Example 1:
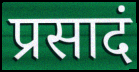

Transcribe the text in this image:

प्रसादं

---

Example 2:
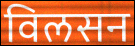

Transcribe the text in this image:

विलसन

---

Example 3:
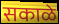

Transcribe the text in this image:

सकाळे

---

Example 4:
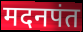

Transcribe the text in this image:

मदनपंत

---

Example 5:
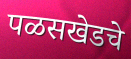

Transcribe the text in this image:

पळसखेडचे